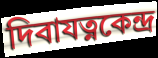
দিবাযত্নকেন্দ্র